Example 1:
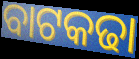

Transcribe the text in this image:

ବାଟକଢା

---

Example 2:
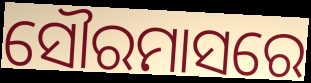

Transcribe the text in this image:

ସୌରମାସରେ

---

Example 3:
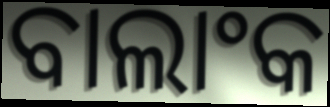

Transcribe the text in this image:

ବାଲାଂକ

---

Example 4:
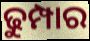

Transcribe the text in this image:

ଢୁମ୍ପାର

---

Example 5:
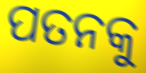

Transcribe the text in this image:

ପତନକୁ